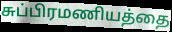
சுப்பிரமணியத்தை